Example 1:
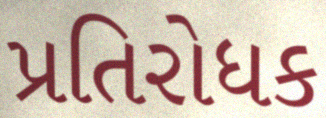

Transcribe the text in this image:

પ્રતિરોધક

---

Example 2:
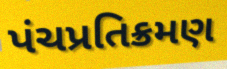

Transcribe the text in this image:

પંચપ્રતિક્રમણ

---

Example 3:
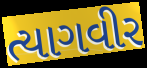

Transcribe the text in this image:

ત્યાગવીર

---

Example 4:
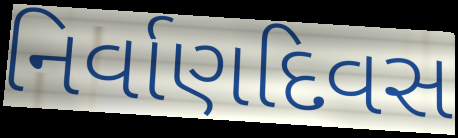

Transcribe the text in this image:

નિર્વાણદિવસ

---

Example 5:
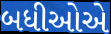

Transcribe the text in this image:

બધીઓએ